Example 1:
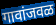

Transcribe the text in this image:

गावांजवळ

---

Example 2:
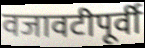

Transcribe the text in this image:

वजावटीपूर्वी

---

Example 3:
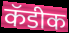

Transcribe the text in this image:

कॅडीक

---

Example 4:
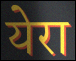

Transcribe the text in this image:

येरा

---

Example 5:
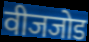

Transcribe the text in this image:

वीजजोड